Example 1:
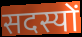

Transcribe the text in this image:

सदस्यों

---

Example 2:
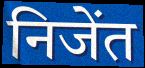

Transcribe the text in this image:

निजेंत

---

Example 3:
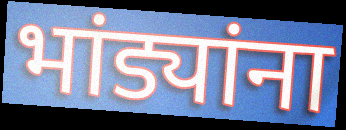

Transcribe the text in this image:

भांड्यांना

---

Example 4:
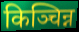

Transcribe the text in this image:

किञ्चिन्न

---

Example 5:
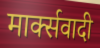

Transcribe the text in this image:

मार्क्सवादी